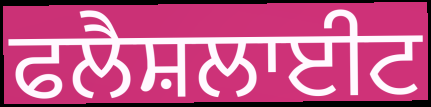
ਫਲੈਸ਼ਲਾਈਟ